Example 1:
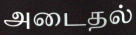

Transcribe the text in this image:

அடைதல்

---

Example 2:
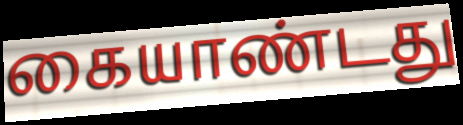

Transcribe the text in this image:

கையாண்டது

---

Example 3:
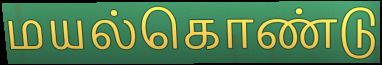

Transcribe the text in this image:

மயல்கொண்டு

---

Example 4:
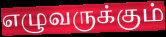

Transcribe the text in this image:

எழுவருக்கும்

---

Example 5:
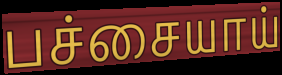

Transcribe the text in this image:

பச்சையாய்